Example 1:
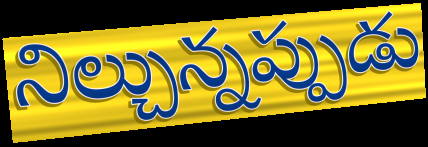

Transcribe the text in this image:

నిల్చున్నప్పుడు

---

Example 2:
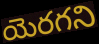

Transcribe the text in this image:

యెరగని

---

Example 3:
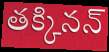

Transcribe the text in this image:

తక్కినన్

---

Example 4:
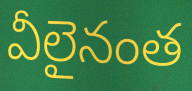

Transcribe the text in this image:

వీలైనంత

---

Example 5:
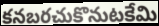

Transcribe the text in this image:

కనబరచుకొనుటకేమి